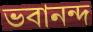
ভবানন্দ